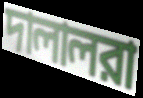
দালালরা